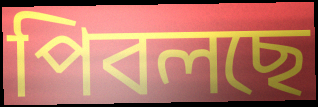
পিবলছে